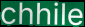
chhile